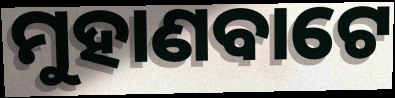
ମୁହାଣବାଟେ